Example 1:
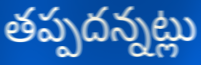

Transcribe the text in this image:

తప్పదన్నట్లు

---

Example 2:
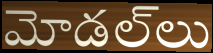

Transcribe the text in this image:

మోడల్‌లు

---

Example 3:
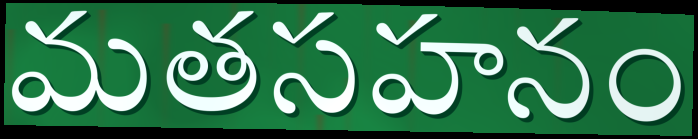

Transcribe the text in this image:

మతసహనం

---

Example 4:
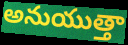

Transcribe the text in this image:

అనుయుత్తా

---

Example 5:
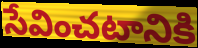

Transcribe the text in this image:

సేవించటానికి